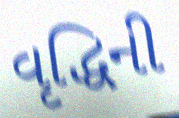
વૃદ્ધિની